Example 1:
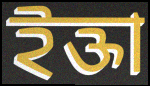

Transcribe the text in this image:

ইক্তা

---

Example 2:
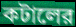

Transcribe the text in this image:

কটালের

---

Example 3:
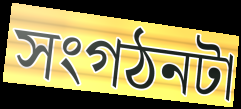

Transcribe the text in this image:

সংগঠনটা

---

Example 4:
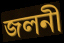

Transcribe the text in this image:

জলনী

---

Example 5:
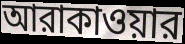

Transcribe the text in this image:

আরাকাওয়ার